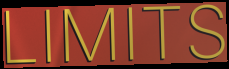
LIMITS